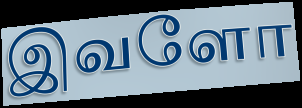
இவளோ